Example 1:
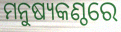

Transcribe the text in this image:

ମନୁଷ୍ୟକଣ୍ଠରେ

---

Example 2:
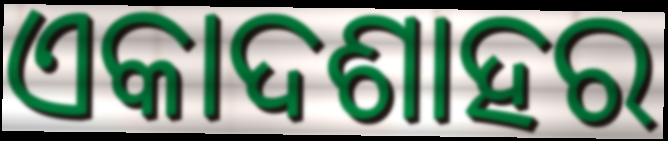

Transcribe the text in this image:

ଏକାଦଶାହର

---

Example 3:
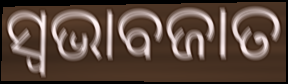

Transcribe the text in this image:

ସ୍ୱଭାବଜାତ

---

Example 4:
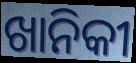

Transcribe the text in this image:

ଖାନିକୀ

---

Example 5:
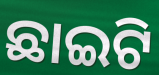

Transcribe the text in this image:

ଛାଇଟି